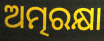
ଅତ୍ମରକ୍ଷା